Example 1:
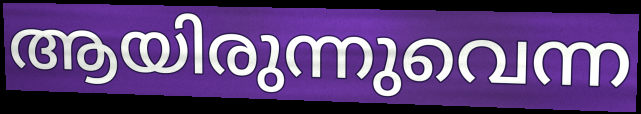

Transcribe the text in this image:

ആയിരുന്നുവെന്ന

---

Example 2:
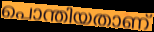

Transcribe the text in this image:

പൊന്തിയതാണ്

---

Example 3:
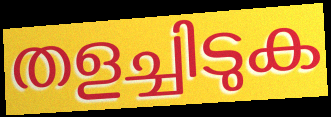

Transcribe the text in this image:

തളച്ചിടുക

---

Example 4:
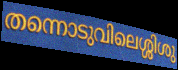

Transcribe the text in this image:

തന്നൊടുവിലെശ്ശിശു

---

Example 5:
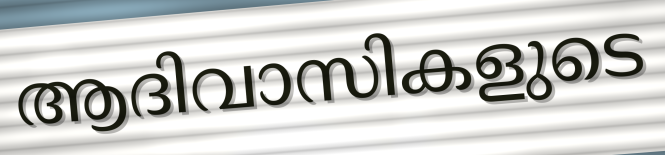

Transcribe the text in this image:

ആദിവാസികളുടെ